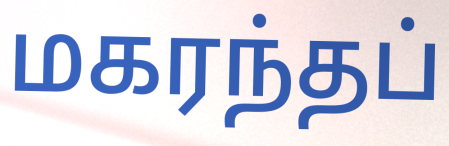
மகரந்தப்